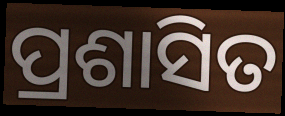
ପ୍ରଶାସିତ